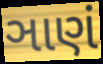
ઞાણં